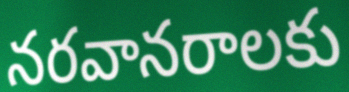
నరవానరాలకు